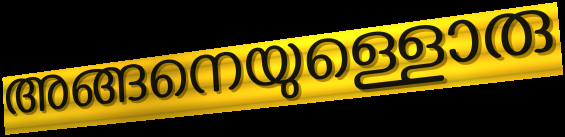
അങ്ങനെയുള്ളൊരു